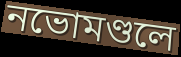
নভোমণ্ডলে